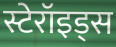
स्टेरॉइड्स